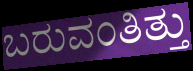
ಬರುವಂತಿತ್ತು